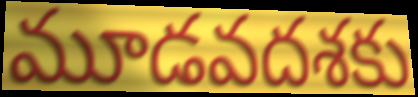
మూడవదశకు